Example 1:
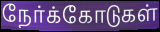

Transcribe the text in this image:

நேர்க்கோடுகள்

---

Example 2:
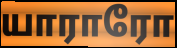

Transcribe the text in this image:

யாராரோ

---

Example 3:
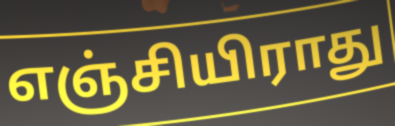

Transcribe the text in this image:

எஞ்சியிராது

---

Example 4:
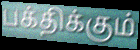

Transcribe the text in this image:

பக்திக்கும்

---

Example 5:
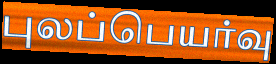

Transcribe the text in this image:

புலப்பெயர்வு